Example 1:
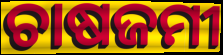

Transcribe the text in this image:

ଚାଷଜମୀ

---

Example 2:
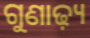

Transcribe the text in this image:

ଗୁଣାଢ଼୍ୟ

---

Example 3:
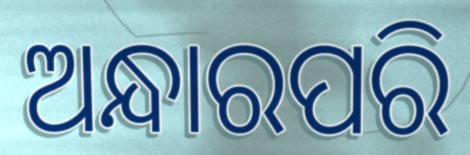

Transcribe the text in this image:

ଅନ୍ଧାରପରି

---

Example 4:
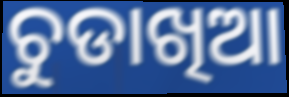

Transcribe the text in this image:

ଚୁଡାଖିଆ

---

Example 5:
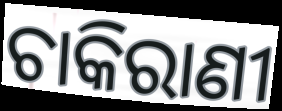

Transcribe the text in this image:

ଚାକିରାଣୀ